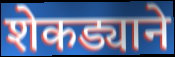
शेकड्याने